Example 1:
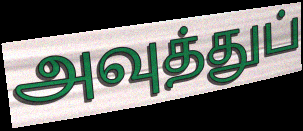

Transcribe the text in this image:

அவுத்துப்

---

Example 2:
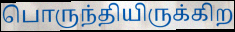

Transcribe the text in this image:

பொருந்தியிருக்கிற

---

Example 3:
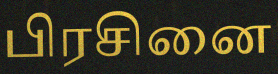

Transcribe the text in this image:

பிரசினை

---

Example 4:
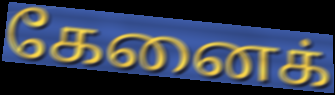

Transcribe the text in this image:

கேனைக்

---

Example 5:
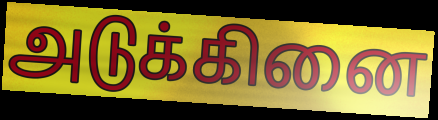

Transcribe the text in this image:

அடுக்கினை